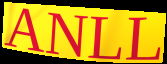
ANLL